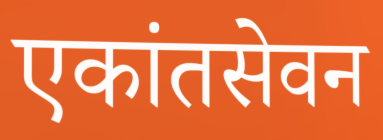
एकांतसेवन